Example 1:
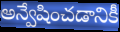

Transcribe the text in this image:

అన్వేషించడానికీ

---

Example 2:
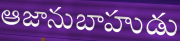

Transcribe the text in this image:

ఆజానుబాహుడు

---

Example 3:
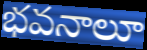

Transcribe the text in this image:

భవనాలూ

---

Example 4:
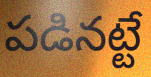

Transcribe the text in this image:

పడినట్టే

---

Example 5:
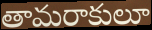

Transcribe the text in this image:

తామరాకులూ